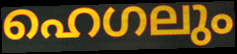
ഹെഗലും